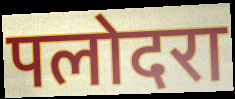
पलोदरा